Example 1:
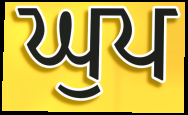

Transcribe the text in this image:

ਘੁਪ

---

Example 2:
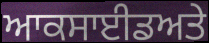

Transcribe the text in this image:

ਆਕਸਾਈਡਅਤੇ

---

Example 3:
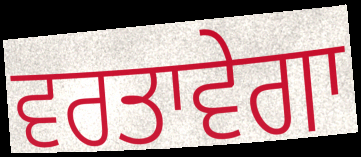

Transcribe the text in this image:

ਵਰਤਾਵੇਗਾ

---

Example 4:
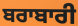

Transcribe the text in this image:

ਬਰਾਬਾਰੀ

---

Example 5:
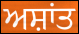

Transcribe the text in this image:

ਅਸ਼ਾਂਤ